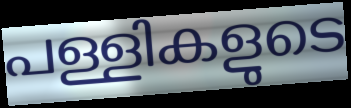
പള്ളികളുടെ